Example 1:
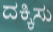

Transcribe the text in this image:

ದಕ್ಕಿಸು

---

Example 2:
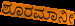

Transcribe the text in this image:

ಶೂರಮಾನೀ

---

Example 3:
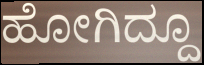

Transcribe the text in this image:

ಹೋಗಿದ್ದೂ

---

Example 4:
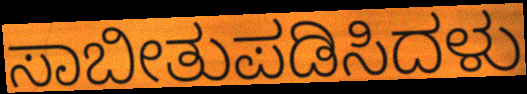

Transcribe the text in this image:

ಸಾಬೀತುಪಡಿಸಿದಳು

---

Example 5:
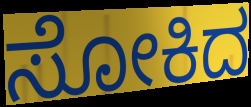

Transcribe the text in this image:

ಸೋಕಿದ